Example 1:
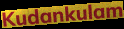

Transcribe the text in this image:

Kudankulam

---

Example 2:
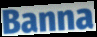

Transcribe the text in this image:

Banna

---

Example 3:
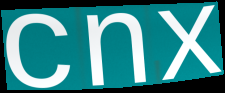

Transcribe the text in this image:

cnx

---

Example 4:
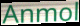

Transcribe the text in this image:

Anmol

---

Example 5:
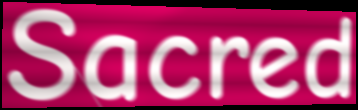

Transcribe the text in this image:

Sacred